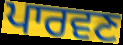
ਪਾਰਵਣ